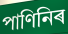
পাণিনিৰ